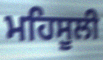
ਮਹਿਸੂਲੀ